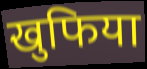
खुफिया